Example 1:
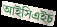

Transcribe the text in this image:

আইসিএইচ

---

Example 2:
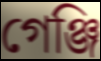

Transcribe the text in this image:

গেঞ্জি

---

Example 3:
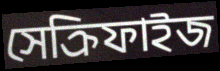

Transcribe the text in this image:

সেক্রিফাইজ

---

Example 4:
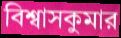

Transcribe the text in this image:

বিশ্বাসকুমার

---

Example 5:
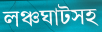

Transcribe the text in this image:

লঞ্চঘাটসহ